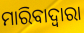
ମାରିବାଦ୍ୱାରା